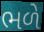
ભળે